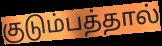
குடும்பத்தால்